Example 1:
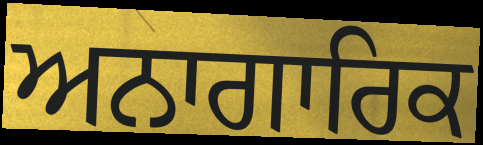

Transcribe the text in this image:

ਅਨਾਗਾਰਿਕ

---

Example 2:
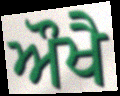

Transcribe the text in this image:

ਔਖੈ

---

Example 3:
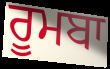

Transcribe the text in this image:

ਰੂਮਬਾ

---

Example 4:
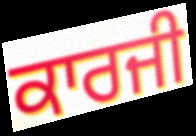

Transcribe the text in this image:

ਕਾਰਜੀ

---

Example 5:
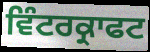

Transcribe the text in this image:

ਵਿੰਟਰਕ੍ਰਾਫਟ